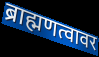
ब्राह्मणत्वावर